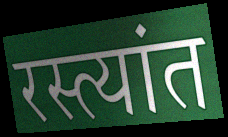
रस्त्यांत